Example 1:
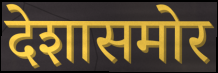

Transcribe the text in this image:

देशासमोर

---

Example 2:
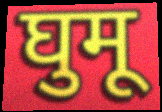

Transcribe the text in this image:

घुमू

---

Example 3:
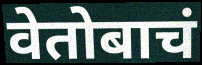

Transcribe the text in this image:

वेतोबाचं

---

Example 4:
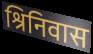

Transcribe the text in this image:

श्रिनिवास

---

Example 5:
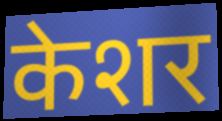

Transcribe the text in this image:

केशर